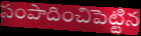
సంపాదించిపెట్టిన